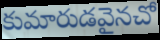
కుమారుడవైనచో